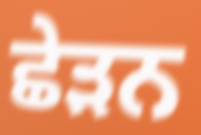
ਛੇੜਨ